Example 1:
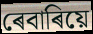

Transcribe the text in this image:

ৰেবাৰিয়ে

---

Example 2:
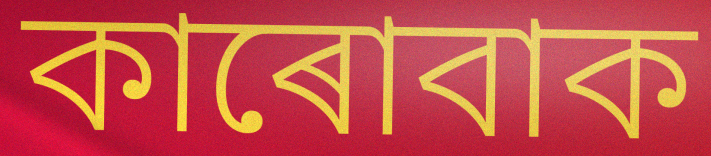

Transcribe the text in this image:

কাৰোবাক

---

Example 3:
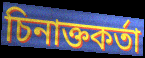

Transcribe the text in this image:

চিনাক্তকৰ্তা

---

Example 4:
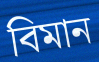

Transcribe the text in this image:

বিমান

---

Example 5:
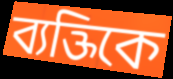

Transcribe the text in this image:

ব্যক্তিকে